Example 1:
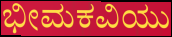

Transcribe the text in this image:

ಭೀಮಕವಿಯು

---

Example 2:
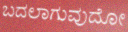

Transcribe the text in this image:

ಬದಲಾಗುವುದೋ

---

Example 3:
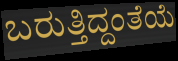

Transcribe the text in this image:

ಬರುತ್ತಿದ್ದಂತೆಯೆ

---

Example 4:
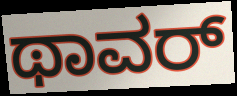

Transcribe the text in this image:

ಥಾವರ್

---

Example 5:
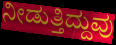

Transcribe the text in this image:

ನೀಡುತ್ತಿದ್ದುವು